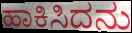
ಹಾಕಿಸಿದನು